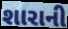
શારાની